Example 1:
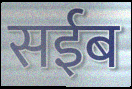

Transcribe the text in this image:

सईब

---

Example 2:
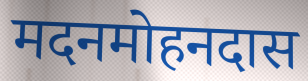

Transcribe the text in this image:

मदनमोहनदास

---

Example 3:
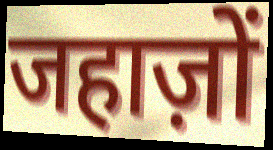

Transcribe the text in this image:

जहाज़ों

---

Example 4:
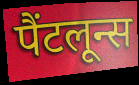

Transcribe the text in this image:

पैंटलून्स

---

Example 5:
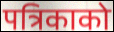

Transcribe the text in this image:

पत्रिकाको